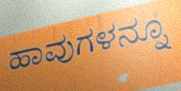
ಹಾವುಗಳನ್ನೂ